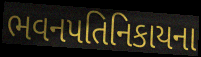
ભવનપતિનિકાયના